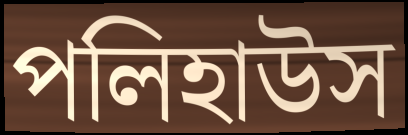
পলিহাউস